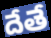
దేతే